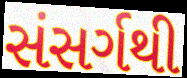
સંસર્ગથી